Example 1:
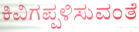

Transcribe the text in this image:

ಕಿವಿಗಪ್ಪಳಿಸುವಂತೆ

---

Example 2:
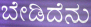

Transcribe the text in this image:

ಬೇಡಿದೆನು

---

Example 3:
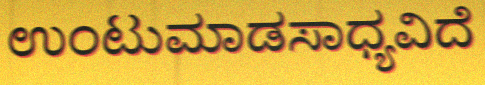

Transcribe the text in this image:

ಉಂಟುಮಾಡಸಾಧ್ಯವಿದೆ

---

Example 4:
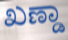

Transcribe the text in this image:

ಖಣ್ಡಾ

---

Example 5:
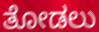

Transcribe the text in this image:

ತೋಡಲು